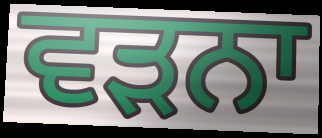
ਵੜਨਾ